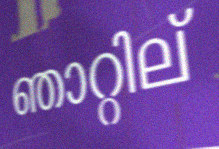
ഞാറ്റില്